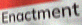
Enactment